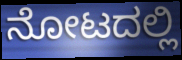
ನೋಟದಲ್ಲಿ